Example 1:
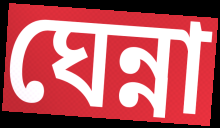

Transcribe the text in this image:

ঘেন্না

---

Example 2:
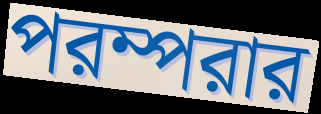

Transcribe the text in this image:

পরম্পরার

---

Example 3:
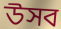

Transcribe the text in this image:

উসব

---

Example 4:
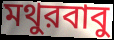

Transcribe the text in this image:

মথুরবাবু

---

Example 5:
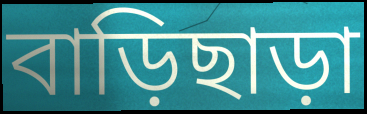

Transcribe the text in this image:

বাড়িছাড়া